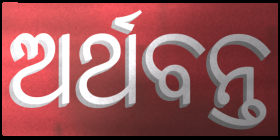
ଅର୍ଥବନ୍ତ